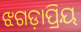
ଝଗଡ଼ାପ୍ରିୟ